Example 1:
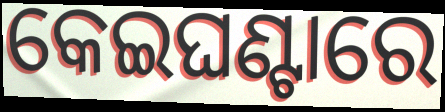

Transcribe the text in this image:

କେଇଘଣ୍ଟାରେ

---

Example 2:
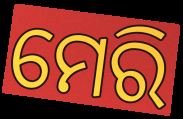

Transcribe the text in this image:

ମେରି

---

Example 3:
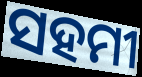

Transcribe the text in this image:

ସହମୀ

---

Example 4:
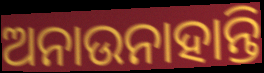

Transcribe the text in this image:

ଅନାଉନାହାନ୍ତି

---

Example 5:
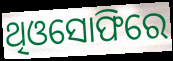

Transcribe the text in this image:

ଥିଓସୋଫିରେ